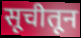
सूचीतून